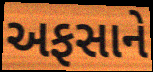
અફસાને